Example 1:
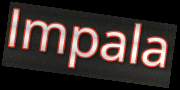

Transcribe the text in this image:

Impala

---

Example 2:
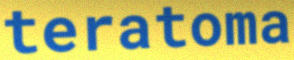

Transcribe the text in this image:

teratoma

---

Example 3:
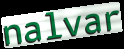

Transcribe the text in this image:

nalvar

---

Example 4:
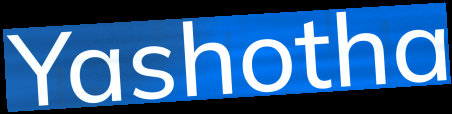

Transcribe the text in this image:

Yashotha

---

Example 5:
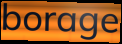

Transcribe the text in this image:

borage